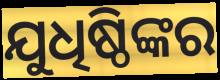
ଯୁଧିଷ୍ଠିଙ୍କର